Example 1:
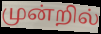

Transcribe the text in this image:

முன்றில்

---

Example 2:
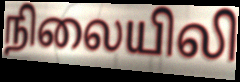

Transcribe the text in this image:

நிலையிலி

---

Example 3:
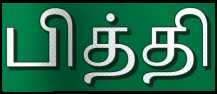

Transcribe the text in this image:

பித்தி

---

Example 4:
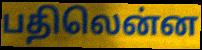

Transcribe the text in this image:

பதிலென்ன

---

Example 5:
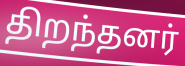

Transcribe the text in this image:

திறந்தனர்